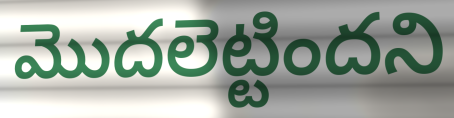
మొదలెట్టిందని